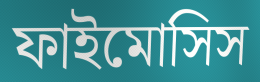
ফাইমোসিস